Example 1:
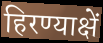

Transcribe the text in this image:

हिरण्याक्षें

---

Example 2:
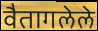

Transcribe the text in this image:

वैतागलेले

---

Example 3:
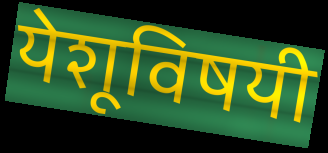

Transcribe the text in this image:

येशूविषयी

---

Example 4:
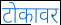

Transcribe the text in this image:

टोकावर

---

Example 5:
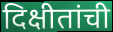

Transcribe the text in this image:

दिक्षीतांची